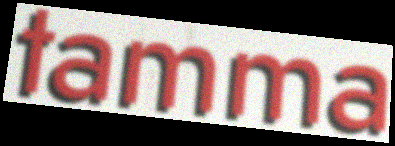
tamma